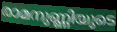
രാമനുണ്ണിയുടെ